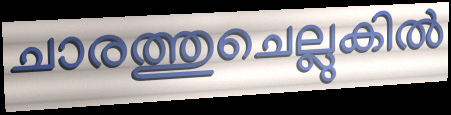
ചാരത്തുചെല്ലുകിൽ